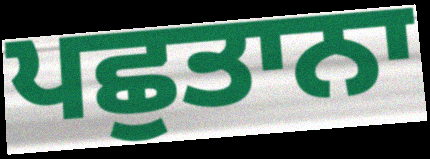
ਪਛੁਤਾਨਾ